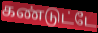
கண்டுட்டே